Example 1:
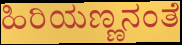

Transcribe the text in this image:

ಹಿರಿಯಣ್ಣನಂತೆ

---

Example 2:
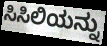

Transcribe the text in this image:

ಸಿಸಿಲಿಯನ್ನು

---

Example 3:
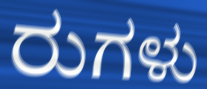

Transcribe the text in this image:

ರುಗಳು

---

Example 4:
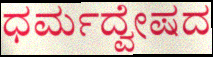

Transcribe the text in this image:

ಧರ್ಮದ್ವೇಷದ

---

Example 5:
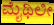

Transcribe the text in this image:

ಮೈಥಿಲೀ